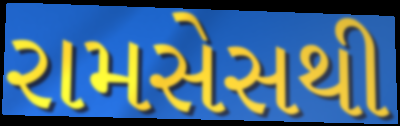
રામસેસથી